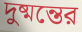
দুষ্মন্তের